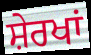
ਸ਼ੇਰਖਾਂ